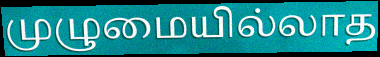
முழுமையில்லாத